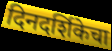
दिनदर्शिकेचा